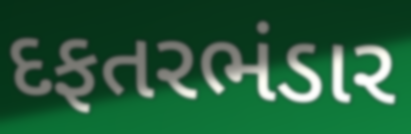
દફતરભંડાર